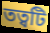
তত্বটি